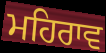
ਮਹਿਰਾਵ